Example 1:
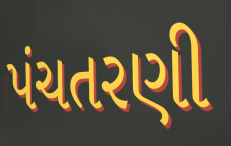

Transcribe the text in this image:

પંચતરણી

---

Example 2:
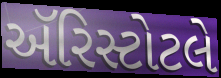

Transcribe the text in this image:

ઍરિસ્ટોટલે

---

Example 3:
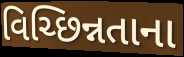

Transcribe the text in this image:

વિચ્છિન્નતાના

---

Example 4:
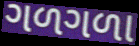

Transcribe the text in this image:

ગળગળા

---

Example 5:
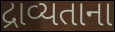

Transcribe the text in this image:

દ્રાવ્યતાના